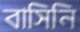
বাসিনি